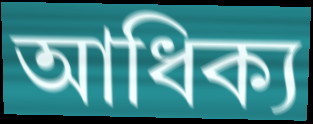
আধিক্য